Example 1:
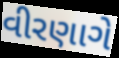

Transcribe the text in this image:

વીરણાગે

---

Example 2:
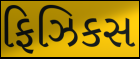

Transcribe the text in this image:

ફિઝિકસ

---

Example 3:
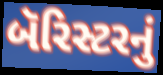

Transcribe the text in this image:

બૅરિસ્ટરનું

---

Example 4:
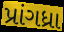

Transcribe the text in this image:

પ્રાંગધ્રા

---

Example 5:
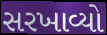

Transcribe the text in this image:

સરખાવ્યો